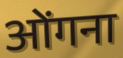
ओंगना